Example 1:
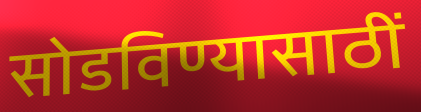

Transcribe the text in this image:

सोडविण्यासाठीं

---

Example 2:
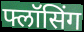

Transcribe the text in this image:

फ्लॉसिंग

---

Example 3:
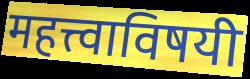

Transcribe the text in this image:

महत्त्वाविषयी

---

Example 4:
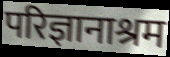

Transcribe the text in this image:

परिज्ञानाश्रम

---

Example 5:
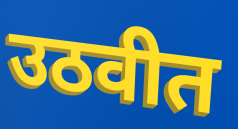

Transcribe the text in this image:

उठवीत